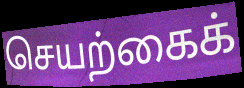
செயற்கைக்